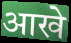
आखे